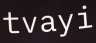
tvayi